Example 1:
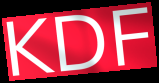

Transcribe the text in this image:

KDF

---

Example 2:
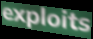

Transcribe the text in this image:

exploits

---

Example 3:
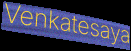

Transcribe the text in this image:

Venkatesaya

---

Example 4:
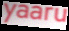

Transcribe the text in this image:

yaaru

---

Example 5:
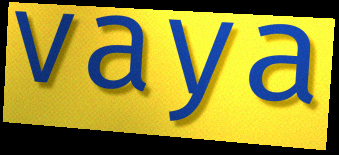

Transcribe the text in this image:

vaya